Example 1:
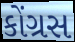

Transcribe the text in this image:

કોંગ્રસ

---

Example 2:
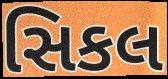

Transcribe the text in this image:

સિકલ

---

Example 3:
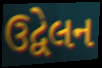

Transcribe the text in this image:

ઉદ્વેલન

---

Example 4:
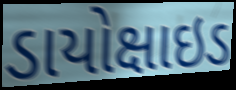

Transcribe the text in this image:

ડાયોક્ષાઇડ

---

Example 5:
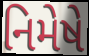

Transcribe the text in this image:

નિમેષે